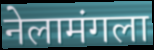
नेलामंगला